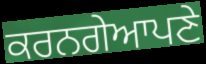
ਕਰਨਗੇਆਪਣੇ